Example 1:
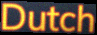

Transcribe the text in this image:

Dutch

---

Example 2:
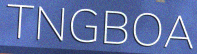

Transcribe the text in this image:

TNGBOA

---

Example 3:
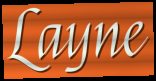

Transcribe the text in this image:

Layne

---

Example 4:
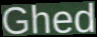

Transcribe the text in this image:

Ghed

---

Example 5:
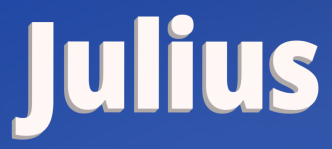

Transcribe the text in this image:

Julius